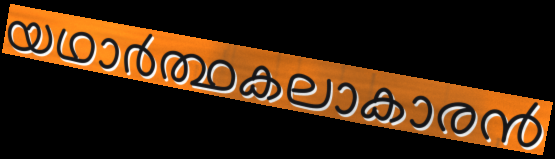
യഥാർത്ഥകലാകാരൻ